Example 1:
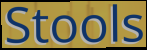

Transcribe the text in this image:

Stools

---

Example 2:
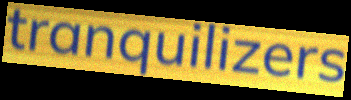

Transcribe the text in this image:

tranquilizers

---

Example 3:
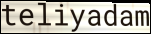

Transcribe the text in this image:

teliyadam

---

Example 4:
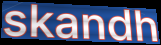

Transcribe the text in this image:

skandh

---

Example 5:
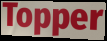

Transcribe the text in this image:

Topper